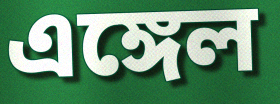
এঙ্গেল